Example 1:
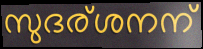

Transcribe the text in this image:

സുദര്ശനന്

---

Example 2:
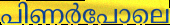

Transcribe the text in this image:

പിണർപോലെ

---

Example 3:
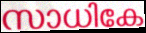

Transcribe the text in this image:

സാധികേ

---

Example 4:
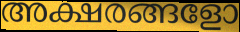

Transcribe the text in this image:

അക്ഷരങ്ങളോ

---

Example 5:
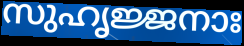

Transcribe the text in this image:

സുഹൃജ്ജനാഃ